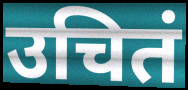
उचितं